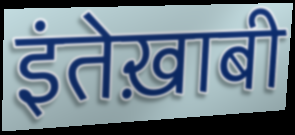
इंतेख़ाबी